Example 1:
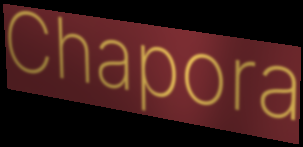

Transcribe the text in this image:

Chapora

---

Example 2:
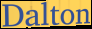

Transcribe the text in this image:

Dalton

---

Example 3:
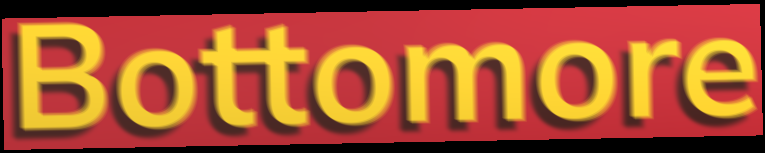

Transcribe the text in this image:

Bottomore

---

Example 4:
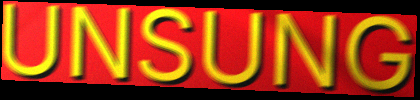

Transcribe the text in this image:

UNSUNG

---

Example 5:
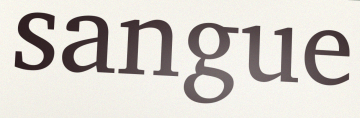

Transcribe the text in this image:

sangue